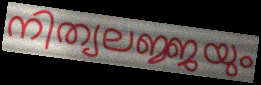
നിത്യലജ്ജയും